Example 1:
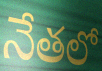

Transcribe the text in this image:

నేతలో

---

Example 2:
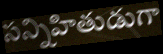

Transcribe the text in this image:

సన్నిహితుడుగా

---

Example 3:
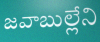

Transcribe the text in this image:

జవాబుల్లేని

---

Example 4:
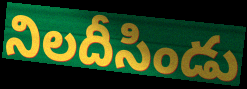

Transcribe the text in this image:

నిలదీసిండు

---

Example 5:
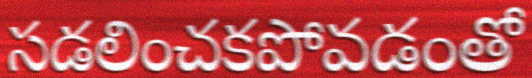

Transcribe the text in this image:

సడలించకపోవడంతో